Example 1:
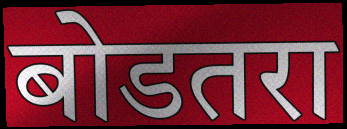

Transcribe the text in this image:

बोडतरा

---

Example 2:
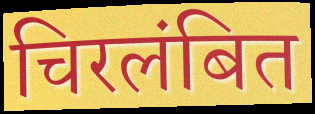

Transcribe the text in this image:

चिरलंबित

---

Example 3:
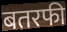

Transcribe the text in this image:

बतरफी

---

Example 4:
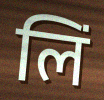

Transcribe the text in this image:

लिं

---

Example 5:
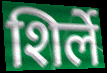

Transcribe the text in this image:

शिर्ले